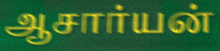
ஆசார்யன்